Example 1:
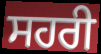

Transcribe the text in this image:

ਸਹਰੀ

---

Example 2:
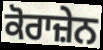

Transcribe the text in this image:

ਕੋਰਾਜ਼ੇਨ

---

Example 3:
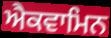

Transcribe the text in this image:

ਐਕਵਾਮਿਨ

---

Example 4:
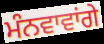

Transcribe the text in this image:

ਮੰਨਵਾਵਾਂਗੇ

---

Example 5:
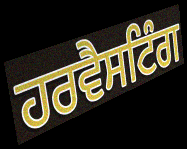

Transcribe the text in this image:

ਹਰਵੈਸਟਿੰਗ